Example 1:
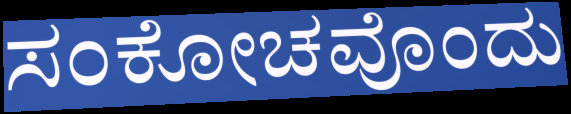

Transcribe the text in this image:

ಸಂಕೋಚವೊಂದು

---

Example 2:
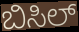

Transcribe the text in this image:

ಬಿಸಿಲ್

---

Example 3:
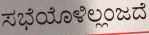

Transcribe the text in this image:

ಸಭೆಯೊಳಿಲ್ಲಂಜದೆ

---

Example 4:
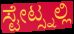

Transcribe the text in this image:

ಸ್ಟೇಟ್ಸ್ನಲ್ಲಿ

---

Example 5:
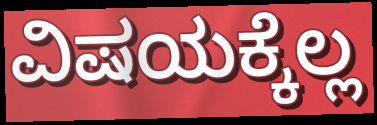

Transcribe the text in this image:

ವಿಷಯಕ್ಕೆಲ್ಲ